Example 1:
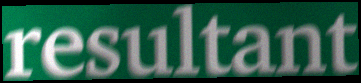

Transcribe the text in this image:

resultant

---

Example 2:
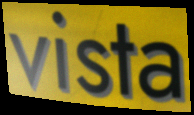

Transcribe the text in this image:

vista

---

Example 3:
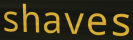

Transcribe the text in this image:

shaves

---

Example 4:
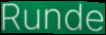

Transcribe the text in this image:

Runde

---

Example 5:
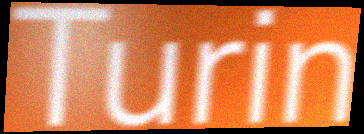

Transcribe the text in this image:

Turin